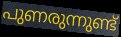
പുണരുന്നുണ്ട്